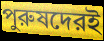
পুরুষদেরই